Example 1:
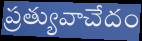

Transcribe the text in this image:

ప్రత్యువాచేదం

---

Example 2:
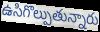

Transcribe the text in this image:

ఉసిగొల్పుతున్నారు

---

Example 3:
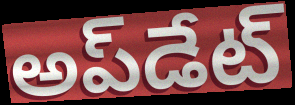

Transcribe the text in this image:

అప్‌డేట్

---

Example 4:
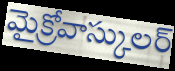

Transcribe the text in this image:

మైక్రోవాస్కులర్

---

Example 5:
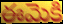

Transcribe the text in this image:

ఈమెకి